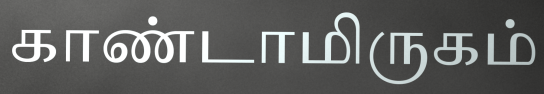
காண்டாமிருகம்